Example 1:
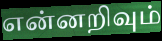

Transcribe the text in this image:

என்னறிவும்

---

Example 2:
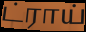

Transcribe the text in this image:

ட்ராய்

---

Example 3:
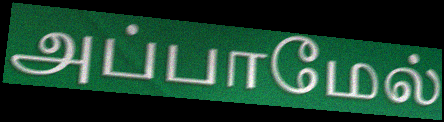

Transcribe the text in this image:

அப்பாமேல்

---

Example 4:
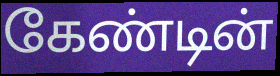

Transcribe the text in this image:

கேண்டின்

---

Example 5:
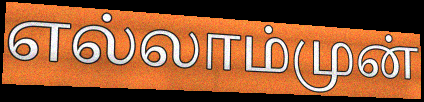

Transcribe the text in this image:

எல்லாம்முன்